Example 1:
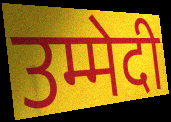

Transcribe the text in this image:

उम्मेदी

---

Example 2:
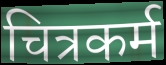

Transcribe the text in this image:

चित्रकर्म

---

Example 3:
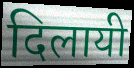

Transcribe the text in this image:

दिलायी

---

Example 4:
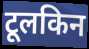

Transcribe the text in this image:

टूलकिन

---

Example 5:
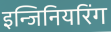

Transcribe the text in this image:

इन्जिनियरिंग